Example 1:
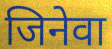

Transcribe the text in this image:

जिनेवा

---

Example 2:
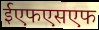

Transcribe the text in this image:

ईएफएसएफ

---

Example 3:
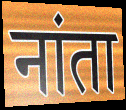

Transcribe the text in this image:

नांता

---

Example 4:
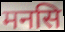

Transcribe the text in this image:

मनसि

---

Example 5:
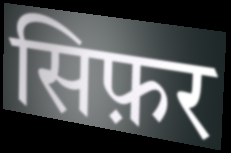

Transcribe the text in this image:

सिफ़र